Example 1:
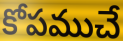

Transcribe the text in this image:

కోపముచే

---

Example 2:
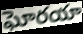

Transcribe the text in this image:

ఘోరయా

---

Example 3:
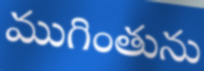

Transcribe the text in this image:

ముగింతును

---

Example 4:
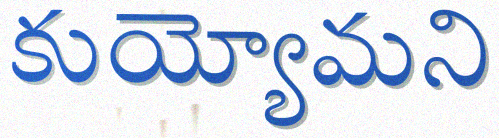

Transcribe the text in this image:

కుయ్యోమని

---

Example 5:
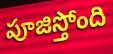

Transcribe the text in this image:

పూజిస్తోంది